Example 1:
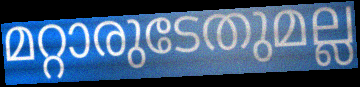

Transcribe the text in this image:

മറ്റാരുടേതുമല്ല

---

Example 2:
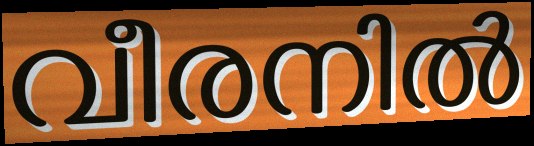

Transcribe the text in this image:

വീരനിൽ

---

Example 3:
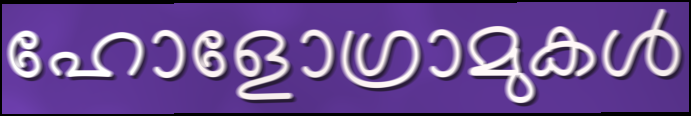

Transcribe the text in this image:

ഹോളോഗ്രാമുകൾ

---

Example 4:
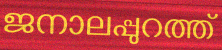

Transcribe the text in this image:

ജനാലപ്പുറത്ത്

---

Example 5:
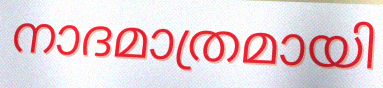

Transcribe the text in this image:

നാദമാത്രമായി